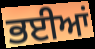
ਭਈਆਂ